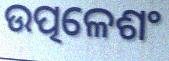
ଉତ୍ପଳେଶଂ